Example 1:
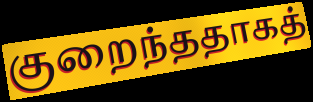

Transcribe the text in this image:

குறைந்ததாகத்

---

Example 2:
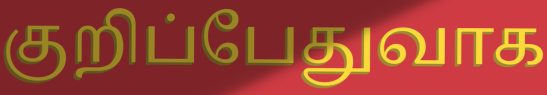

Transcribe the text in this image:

குறிப்பேதுவாக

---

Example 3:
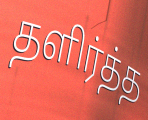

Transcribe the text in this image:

தளிர்த்த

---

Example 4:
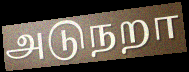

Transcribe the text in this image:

அடுநறா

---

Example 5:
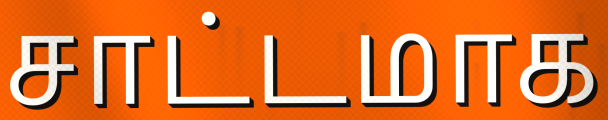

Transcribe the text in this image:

சாட்டமாக